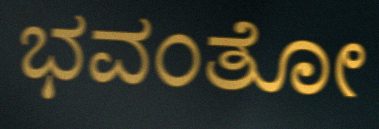
ಭವಂತೋ